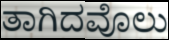
ತಾಗಿದವೊಲು